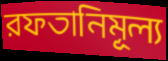
রফতানিমূল্য